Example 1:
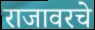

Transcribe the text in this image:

राजावरचे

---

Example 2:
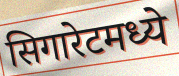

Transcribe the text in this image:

सिगारेटमध्ये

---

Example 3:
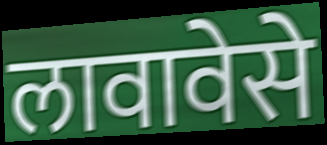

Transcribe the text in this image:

लावावेसे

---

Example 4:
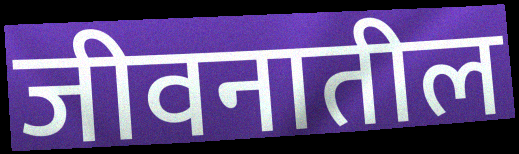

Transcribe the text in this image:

जीवनातील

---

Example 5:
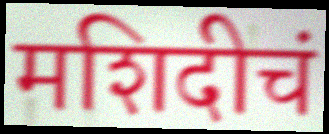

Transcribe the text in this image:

मशिदीचं